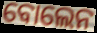
ବୋଲେନ